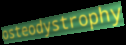
osteodystrophy